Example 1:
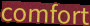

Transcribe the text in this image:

comfort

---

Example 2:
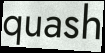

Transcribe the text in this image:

quash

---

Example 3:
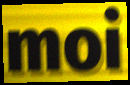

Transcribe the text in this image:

moi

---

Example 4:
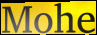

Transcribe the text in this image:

Mohe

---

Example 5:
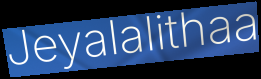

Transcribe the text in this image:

Jeyalalithaa